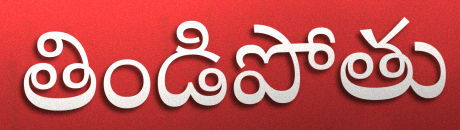
తిండిపోతు